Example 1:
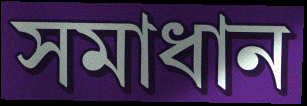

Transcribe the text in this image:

সমাধান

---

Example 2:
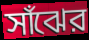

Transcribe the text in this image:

সাঁঝের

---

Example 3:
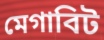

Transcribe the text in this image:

মেগাবিট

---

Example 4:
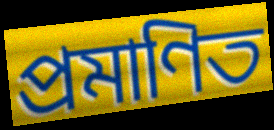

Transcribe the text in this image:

প্রমাণিত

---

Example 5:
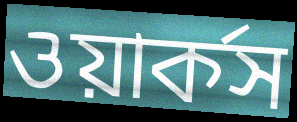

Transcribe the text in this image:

ওয়ার্কস